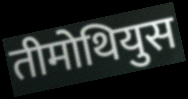
तीमोथियुस